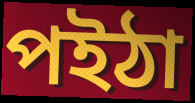
পইঠা